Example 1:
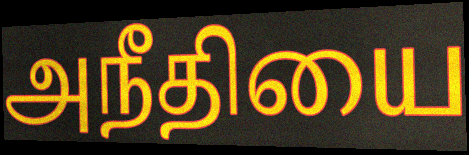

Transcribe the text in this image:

அநீதியை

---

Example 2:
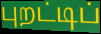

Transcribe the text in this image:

புறட்டிப்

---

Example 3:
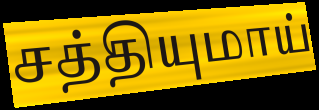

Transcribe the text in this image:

சத்தியுமாய்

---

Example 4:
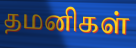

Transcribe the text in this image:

தமனிகள்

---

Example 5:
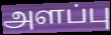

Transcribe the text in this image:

அளப்பு